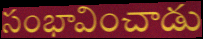
సంభావించాడు